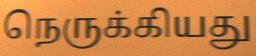
நெருக்கியது